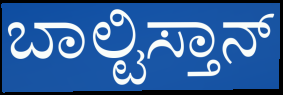
ಬಾಲ್ಟಿಸ್ತಾನ್